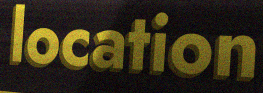
location